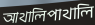
আথালিপাথালি